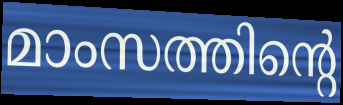
മാംസത്തിന്റെ